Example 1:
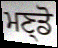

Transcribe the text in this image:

ਮਣ੍ਡੋ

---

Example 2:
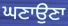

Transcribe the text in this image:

ਘਣਾਉਣਾ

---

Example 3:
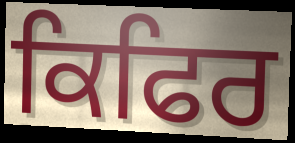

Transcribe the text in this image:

ਕਿਫਿਰ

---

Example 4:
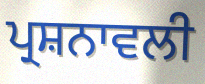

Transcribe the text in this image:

ਪ੍ਰਸ਼ਨਾਵਲੀ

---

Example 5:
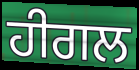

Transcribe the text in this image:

ਹੀਗਲ